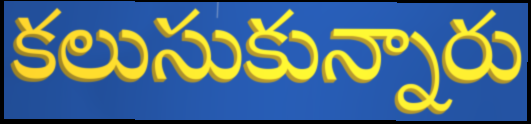
కలుసుకున్నారు